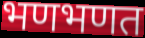
भणभणत